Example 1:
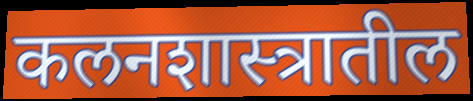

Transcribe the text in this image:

कलनशास्त्रातील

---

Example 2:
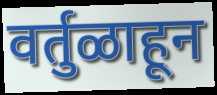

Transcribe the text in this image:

वर्तुळाहून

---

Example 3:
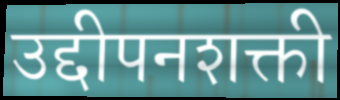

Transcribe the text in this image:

उद्दीपनशक्ती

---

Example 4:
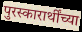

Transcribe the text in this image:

पुरस्कारार्थींच्या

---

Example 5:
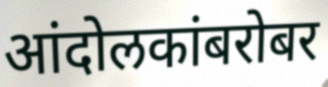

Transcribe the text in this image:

आंदोलकांबरोबर